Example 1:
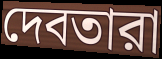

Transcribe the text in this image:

দেবতারা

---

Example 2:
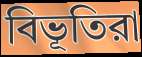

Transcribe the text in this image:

বিভূতিরা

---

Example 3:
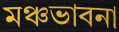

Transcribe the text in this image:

মঞ্চভাবনা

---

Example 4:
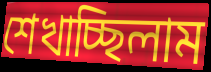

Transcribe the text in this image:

শেখাচ্ছিলাম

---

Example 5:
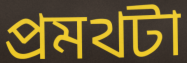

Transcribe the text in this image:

প্রমথটা